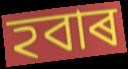
হবাৰ